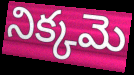
నిక్కమె